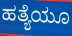
ಹತ್ಯೆಯೂ